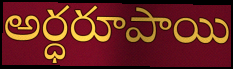
అర్ధరూపాయి